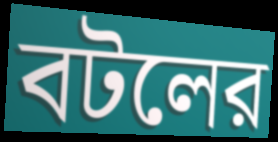
বটলের